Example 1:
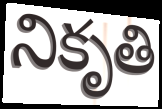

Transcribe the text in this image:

నికృతి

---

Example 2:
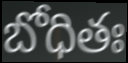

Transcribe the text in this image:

బోధితః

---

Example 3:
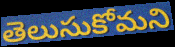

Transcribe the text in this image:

తెలుసుకోమని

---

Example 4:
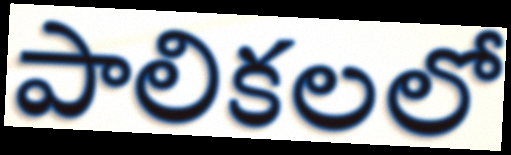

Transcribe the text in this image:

పాలికలలో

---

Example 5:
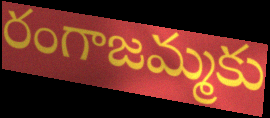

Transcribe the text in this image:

రంగాజమ్మకు